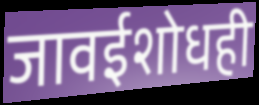
जावईशोधही